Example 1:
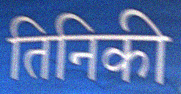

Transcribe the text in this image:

तिनिकी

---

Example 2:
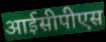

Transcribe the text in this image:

आईसीपीएस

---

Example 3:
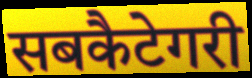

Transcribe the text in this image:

सबकैटेगरी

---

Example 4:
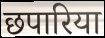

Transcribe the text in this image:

छपारिया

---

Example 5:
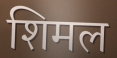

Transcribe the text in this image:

शिमल